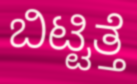
ಬಿಟ್ಟಿತ್ತೆ